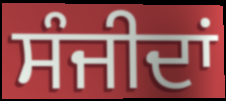
ਸੰਜੀਦਾਂ